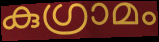
കുഗ്രാമം